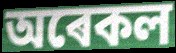
অৰেকল